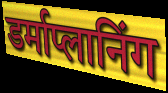
डर्माप्लानिंग